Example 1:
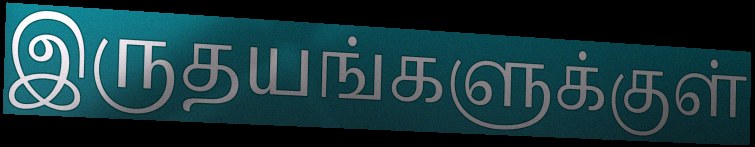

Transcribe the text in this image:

இருதயங்களுக்குள்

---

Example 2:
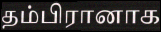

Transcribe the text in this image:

தம்பிரானாக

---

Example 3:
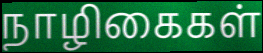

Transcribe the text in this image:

நாழிகைகள்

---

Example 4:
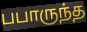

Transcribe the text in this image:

பபாருந்த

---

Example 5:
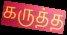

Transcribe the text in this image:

கருத்த